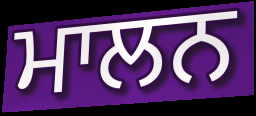
ਮਾਲਨ